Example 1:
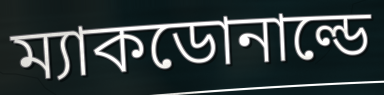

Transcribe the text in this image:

ম্যাকডোনাল্ডে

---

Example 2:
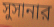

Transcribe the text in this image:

সুসানার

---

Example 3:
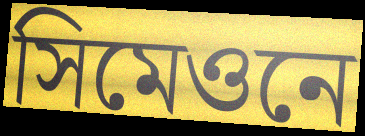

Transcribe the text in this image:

সিমেওনে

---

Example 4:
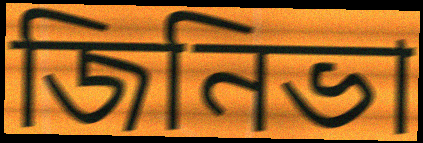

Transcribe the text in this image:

জিনিভা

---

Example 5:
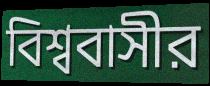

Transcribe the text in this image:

বিশ্ববাসীর